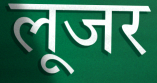
लूजर